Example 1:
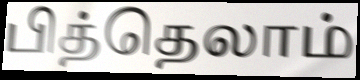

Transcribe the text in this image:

பித்தெலாம்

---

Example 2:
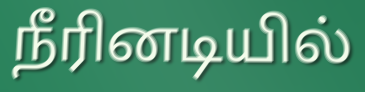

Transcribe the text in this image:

நீரினடியில்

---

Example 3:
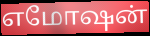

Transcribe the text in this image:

எமோஷன்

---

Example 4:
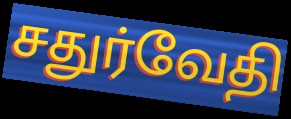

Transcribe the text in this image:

சதுர்வேதி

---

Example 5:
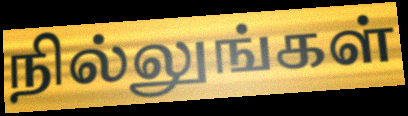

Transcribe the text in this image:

நில்லுங்கள்